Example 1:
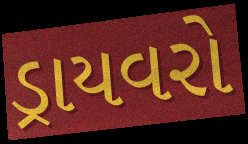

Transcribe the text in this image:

ડ્રાયવરો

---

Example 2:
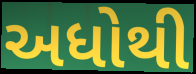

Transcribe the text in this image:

અધોથી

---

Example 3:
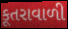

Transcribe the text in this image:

કૂતરાવાળી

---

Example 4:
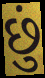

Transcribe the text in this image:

છું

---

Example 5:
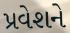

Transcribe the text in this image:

પ્રવેશને